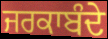
ਜਰਕਾਬੰਦੇ